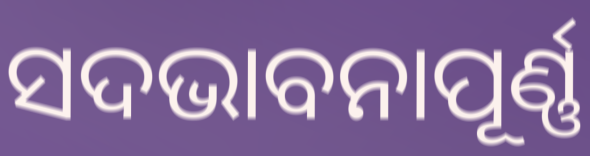
ସଦଭାବନାପୂର୍ଣ୍ଣ